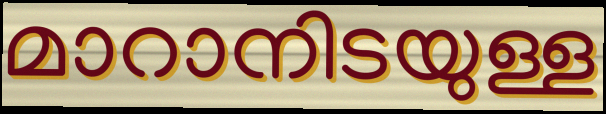
മാറാനിടയുള്ള